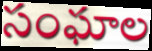
సంఘాల